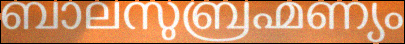
ബാലസുബ്രഹ്മണ്യം